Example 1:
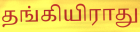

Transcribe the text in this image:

தங்கியிராது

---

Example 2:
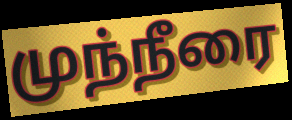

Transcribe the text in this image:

முந்நீரை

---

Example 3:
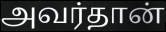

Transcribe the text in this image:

அவர்தான்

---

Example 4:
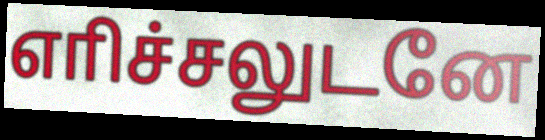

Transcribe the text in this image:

எரிச்சலுடனே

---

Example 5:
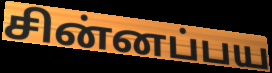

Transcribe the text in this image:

சின்னப்பய